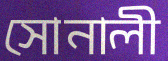
সোনালী